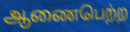
ஆணைபெற்ற